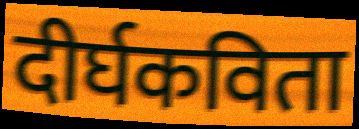
दीर्घकविता